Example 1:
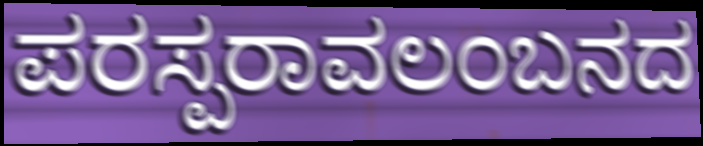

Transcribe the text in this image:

ಪರಸ್ಪರಾವಲಂಬನದ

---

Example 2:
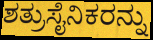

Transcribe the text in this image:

ಶತ್ರುಸೈನಿಕರನ್ನು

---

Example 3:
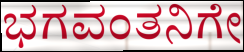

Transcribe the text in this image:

ಭಗವಂತನಿಗೇ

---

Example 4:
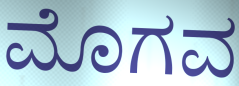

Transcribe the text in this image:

ಮೊಗವ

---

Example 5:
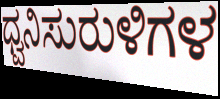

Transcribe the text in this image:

ಧ್ವನಿಸುರುಳಿಗಳ